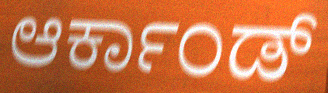
ಆರ್ಕಾಂಡ್